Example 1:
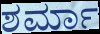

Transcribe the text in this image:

ಶರ್ಮಾ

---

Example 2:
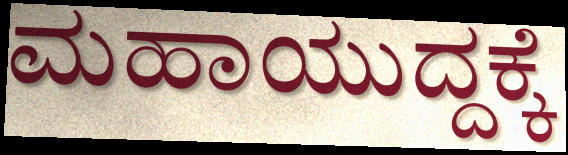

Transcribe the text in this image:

ಮಹಾಯುದ್ದಕ್ಕೆ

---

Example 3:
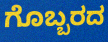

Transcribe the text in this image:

ಗೊಬ್ಬರದ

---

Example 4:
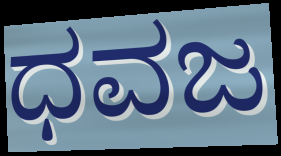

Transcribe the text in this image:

ಧವಜ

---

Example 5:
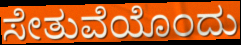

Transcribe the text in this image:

ಸೇತುವೆಯೊಂದು